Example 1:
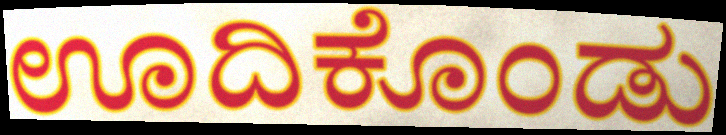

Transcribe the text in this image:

ಊದಿಕೊಂಡು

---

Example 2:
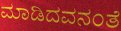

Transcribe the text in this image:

ಮಾಡಿದವನಂತೆ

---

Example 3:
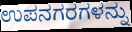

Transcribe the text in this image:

ಉಪನಗರಗಳನ್ನು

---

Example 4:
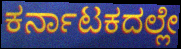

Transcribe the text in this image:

ಕರ್ನಾಟಕದಲ್ಲೇ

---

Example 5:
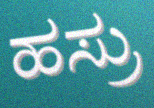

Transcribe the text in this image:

ಹಸ್ರು